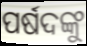
ପର୍ଷଦଙ୍କୁ